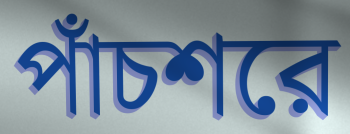
পাঁচশরে